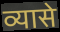
व्यासे